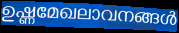
ഉഷ്ണമേഖലാവനങ്ങൾ